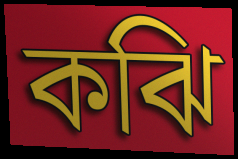
কঝি